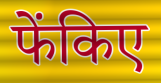
फेंकिए